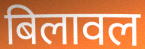
बिलावल